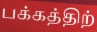
பக்கத்திற்